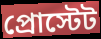
প্রোস্টেট